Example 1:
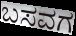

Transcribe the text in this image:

ಬಸವಗ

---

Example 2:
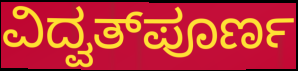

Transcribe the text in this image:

ವಿದ್ವತ್‌ಪೂರ್ಣ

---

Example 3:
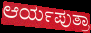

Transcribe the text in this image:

ಆರ್ಯಪುತ್ರಾ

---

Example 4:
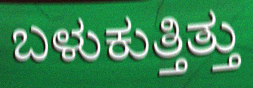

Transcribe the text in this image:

ಬಳುಕುತ್ತಿತ್ತು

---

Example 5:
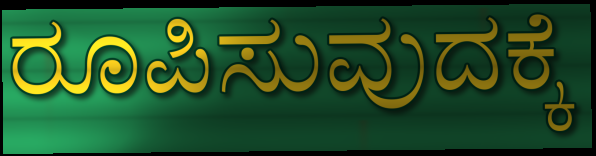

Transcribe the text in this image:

ರೂಪಿಸುವುದಕ್ಕೆ